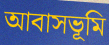
আবাসভূমি